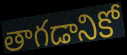
తాగడానికో